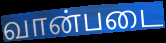
வான்படை